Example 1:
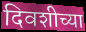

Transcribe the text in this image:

दिवशीच्या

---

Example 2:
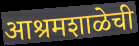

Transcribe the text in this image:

आश्रमशाळेची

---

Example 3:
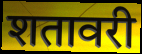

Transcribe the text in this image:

शतावरी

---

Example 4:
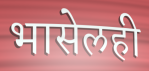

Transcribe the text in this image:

भासेलही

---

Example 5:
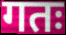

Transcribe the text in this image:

गतः